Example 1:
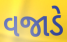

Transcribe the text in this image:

વજાડે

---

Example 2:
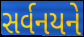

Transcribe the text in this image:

સર્વનયને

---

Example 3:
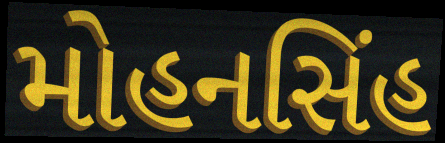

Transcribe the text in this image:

મોહનસિંહ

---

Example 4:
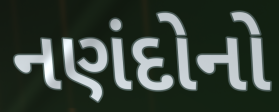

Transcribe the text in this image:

નણંદોનો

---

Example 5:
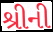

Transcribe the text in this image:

શ્રીની